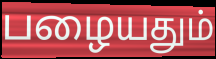
பழையதும்